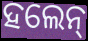
ହଲେନ୍